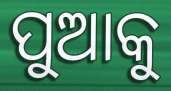
ପୁଆକୁ